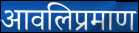
आवलिप्रमाण